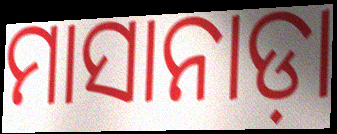
ମାସାନାଡ଼ା